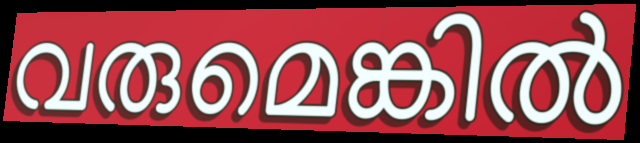
വരുമെങ്കിൽ